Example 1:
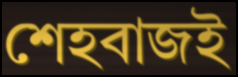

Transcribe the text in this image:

শেহবাজই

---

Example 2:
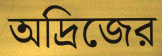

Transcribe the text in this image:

অদ্রিজের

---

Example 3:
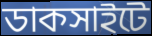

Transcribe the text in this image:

ডাকসাইটে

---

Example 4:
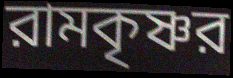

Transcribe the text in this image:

রামকৃষ্ণর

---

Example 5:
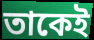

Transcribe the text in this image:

তাকেই